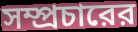
সম্প্রচারের